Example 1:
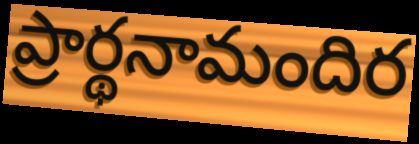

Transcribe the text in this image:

ప్రార్థనామందిర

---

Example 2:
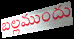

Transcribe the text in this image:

బల్లముందు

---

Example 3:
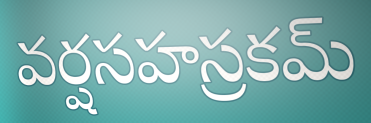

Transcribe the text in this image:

వర్షసహస్రకమ్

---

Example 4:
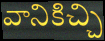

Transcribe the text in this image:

వానికిచ్చి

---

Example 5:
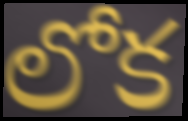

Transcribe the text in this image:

లోక